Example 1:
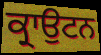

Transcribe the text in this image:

ਕ੍ਰਾਉਟਨ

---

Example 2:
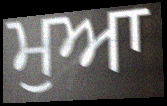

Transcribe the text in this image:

ਮੁਆ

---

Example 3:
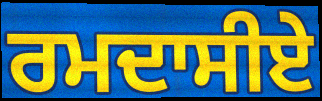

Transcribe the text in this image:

ਰਮਦਾਸੀਏ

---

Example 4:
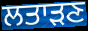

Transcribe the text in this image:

ਲਤਾੜਣ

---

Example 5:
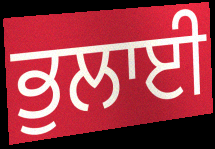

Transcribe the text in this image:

ਭੁਲਾਈ